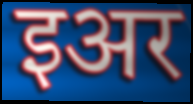
इअर